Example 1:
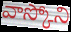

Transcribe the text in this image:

వాస్కోని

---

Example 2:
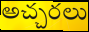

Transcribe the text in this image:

అచ్చరలు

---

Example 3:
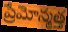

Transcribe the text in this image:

ప్రేమోన్మత్త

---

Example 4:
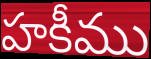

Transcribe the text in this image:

హకీము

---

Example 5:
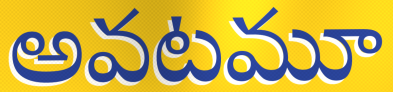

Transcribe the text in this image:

అవటమూ